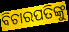
ବିଚାରପତିଙ୍କୁ